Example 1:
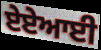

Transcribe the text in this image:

ਏਏਆਈ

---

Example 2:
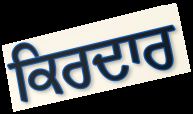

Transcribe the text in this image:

ਕਿਰਦਾਰ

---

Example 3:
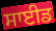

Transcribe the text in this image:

ਸਾਈਡ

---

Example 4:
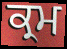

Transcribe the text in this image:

ਕ੍ਰਮ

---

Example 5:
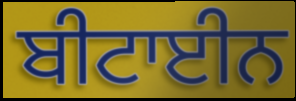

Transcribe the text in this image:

ਬੀਟਾਈਨ